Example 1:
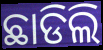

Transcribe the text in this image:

ଛାଡିଲି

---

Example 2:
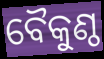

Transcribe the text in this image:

ବୈକୁଣ୍ଠ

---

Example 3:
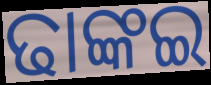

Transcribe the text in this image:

ଢାଙ୍କଇ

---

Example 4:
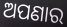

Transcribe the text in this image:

ଅପଣାର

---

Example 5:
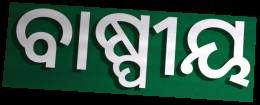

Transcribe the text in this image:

ବାଷ୍ପୀୟ